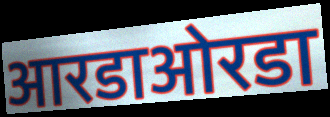
आरडाओरडा